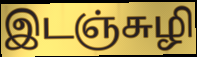
இடஞ்சுழி